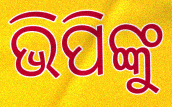
ଭିପିଙ୍କୁ